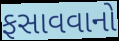
ફસાવવાનો